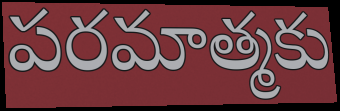
పరమాత్మకు